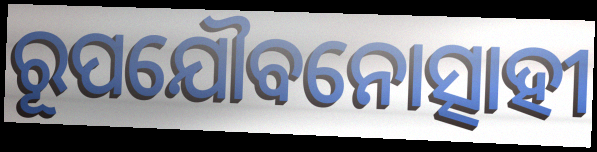
ରୂପଯୌବନୋତ୍ସାହୀ